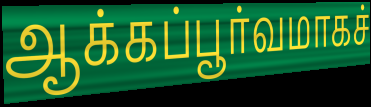
ஆக்கப்பூர்வமாகச்